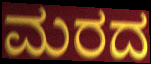
ಮರದ